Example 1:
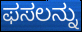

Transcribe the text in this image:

ಫಸಲನ್ನು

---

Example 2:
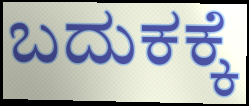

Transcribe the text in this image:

ಬದುಕಕ್ಕೆ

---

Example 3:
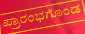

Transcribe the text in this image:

ಪ್ರಾರಂಭಗೊಂಡ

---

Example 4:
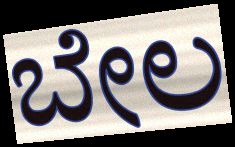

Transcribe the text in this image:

ಬೇಲ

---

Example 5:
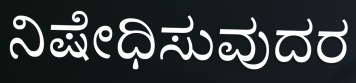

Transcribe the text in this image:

ನಿಷೇಧಿಸುವುದರ